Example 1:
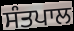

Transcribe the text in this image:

ਸੰਤਪਾਲ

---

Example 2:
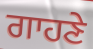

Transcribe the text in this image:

ਗਾਹਣੇ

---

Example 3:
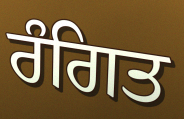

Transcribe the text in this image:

ਰੰਗਿਤ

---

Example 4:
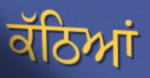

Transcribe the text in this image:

ਕੱਠਿਆਂ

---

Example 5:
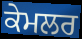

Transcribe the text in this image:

ਕੇਮਲਰ